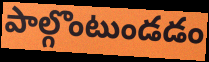
పాల్గొంటుండడం